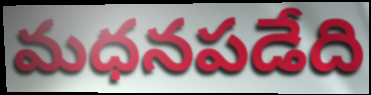
మధనపడేది